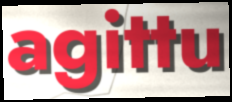
agittu